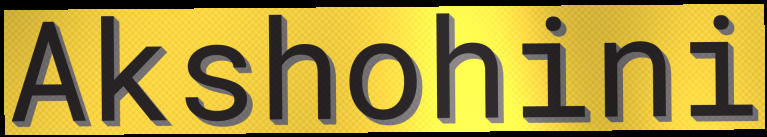
Akshohini